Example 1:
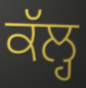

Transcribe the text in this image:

ਕੱਲ੍ਹ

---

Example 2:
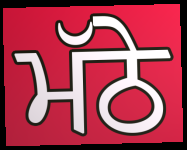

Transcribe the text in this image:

ਮੱਠੇ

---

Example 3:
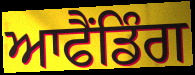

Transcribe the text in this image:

ਆਫੈਂਡਿੰਗ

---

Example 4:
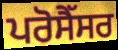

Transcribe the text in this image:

ਪਰੋਸੈੱਸਰ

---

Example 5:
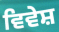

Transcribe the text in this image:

ਵਿਵੇਸ਼